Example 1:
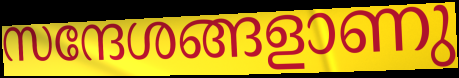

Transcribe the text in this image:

സന്ദേശങ്ങളാണു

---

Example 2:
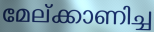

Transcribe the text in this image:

മേല്ക്കാണിച്ച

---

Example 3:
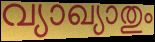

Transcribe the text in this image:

വ്യാഖ്യാതും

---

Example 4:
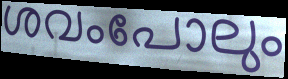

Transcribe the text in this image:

ശവംപോലും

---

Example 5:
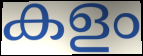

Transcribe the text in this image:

കളം